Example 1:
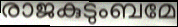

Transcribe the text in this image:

രാജകുടുംബമേ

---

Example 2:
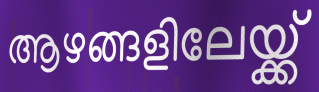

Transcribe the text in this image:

ആഴങ്ങളിലേയ്ക്ക്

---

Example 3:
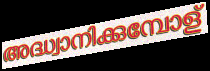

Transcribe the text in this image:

അദ്ധ്വാനിക്കുമ്പോള്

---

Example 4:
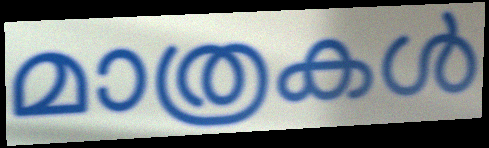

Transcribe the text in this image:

മാത്രകൾ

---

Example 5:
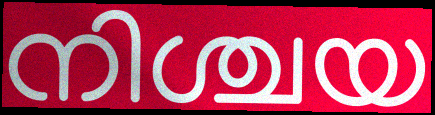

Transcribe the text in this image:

നിശ്ചയ